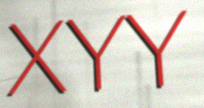
XYY